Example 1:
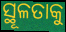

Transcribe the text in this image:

ସ୍ଥୂଳତାକୁ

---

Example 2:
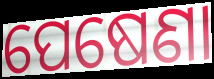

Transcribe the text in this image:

ପେଷେଣା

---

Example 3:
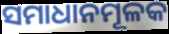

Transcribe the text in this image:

ସମାଧାନମୂଳକ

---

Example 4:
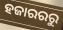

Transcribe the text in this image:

ହଜାରରରୁ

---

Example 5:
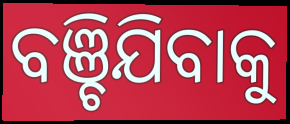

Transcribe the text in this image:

ବଞ୍ଚିଯିବାକୁ